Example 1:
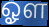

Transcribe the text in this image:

ஓள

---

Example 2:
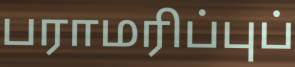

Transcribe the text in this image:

பராமரிப்புப்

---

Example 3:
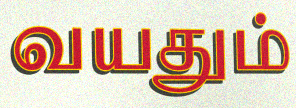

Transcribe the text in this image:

வயதும்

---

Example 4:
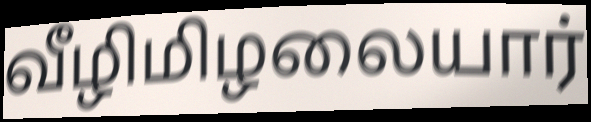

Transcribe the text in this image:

வீழிமிழலையார்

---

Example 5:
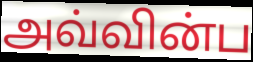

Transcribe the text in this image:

அவ்வின்ப